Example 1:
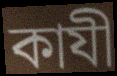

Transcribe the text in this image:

কাযী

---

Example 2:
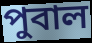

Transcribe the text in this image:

পুবাল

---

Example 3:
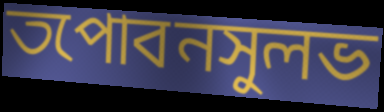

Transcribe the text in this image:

তপোবনসুলভ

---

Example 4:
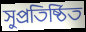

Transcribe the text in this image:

সুপ্রতিষ্ঠিত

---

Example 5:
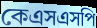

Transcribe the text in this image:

কেএসএসপি